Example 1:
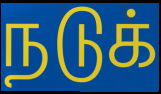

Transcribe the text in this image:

நடுக்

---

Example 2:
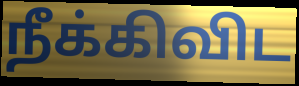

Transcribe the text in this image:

நீக்கிவிட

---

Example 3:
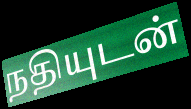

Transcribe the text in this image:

நதியுடன்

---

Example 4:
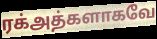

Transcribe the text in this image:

ரக்அத்களாகவே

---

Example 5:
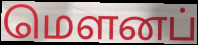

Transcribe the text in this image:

மெளனப்